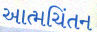
આત્મચિંતન